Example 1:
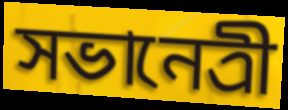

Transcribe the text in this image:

সভানেত্ৰী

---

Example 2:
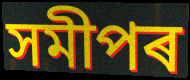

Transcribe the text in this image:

সমীপৰ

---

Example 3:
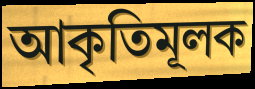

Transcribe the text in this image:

আকৃতিমূলক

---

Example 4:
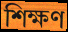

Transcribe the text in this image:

শিক্ষণ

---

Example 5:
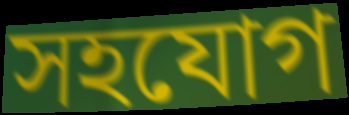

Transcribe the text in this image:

সহযোগ